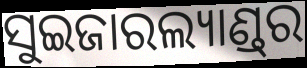
ସୁଇଜାରଲ୍ୟାଣ୍ଡ୍‌ର